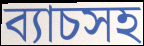
ব্যাচসহ